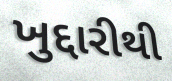
ખુદ્દારીથી